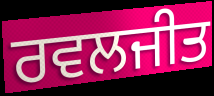
ਰਵਲਜੀਤ